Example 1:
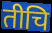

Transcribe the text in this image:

तीचि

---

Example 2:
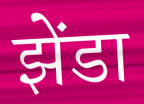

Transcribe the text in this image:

झेंडा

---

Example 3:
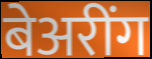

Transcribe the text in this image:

बेअरींग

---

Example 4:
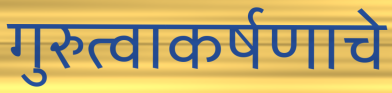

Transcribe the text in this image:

गुरुत्वाकर्षणाचे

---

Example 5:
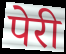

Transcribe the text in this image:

पेरी